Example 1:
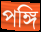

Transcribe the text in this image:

পঙ্গি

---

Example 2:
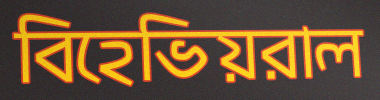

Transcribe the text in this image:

বিহেভিয়রাল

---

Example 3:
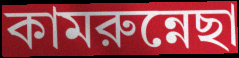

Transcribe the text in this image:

কামরুন্নেছা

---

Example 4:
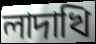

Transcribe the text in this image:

লাদাখি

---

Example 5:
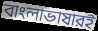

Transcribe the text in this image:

বাংলাভাষারই